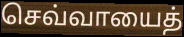
செவ்வாயைத்